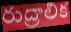
రుద్రాలిక